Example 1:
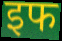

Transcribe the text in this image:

इफ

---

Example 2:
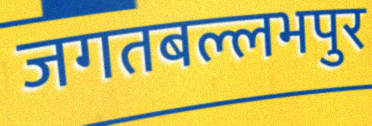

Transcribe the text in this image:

जगतबल्लभपुर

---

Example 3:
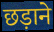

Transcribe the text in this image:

छड़ाने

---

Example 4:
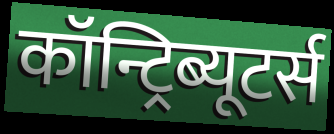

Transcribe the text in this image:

कॉन्ट्रिब्यूटर्स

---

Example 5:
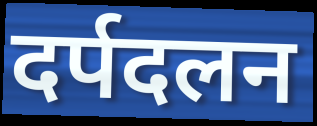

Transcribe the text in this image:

दर्पदलन